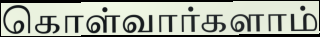
கொள்வார்களாம்